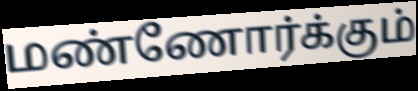
மண்ணோர்க்கும்